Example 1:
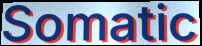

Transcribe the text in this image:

Somatic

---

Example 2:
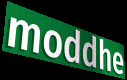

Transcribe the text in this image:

moddhe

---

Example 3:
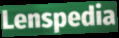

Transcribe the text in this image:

Lenspedia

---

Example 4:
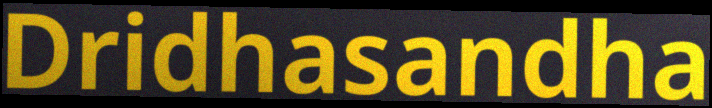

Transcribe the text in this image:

Dridhasandha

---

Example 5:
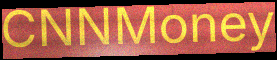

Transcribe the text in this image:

CNNMoney